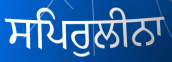
ਸਪਿਰੁਲੀਨਾ